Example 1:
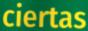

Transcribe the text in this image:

ciertas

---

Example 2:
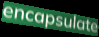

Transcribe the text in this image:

encapsulate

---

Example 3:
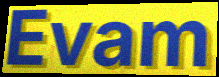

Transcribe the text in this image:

Evam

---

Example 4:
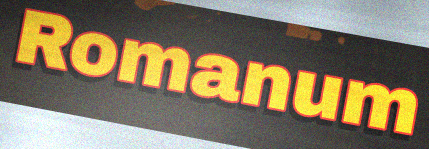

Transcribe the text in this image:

Romanum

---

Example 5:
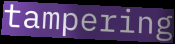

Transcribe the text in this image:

tampering